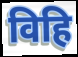
विहि